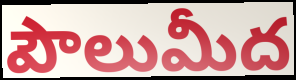
పౌలుమీద